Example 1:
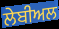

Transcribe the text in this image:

ਲੇਬੀਅਲ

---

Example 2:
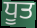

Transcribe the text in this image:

ਧੂਤ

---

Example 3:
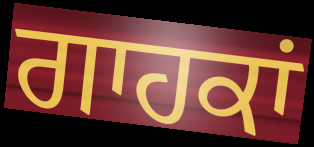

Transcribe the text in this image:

ਗਾਹਕਾਂ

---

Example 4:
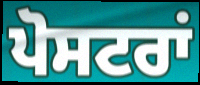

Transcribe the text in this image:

ਪੋਸਟਰਾਂ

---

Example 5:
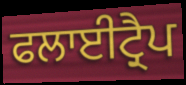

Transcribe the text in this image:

ਫਲਾਈਟ੍ਰੈਪ